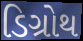
ડિગ્રોથ